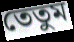
তেতুম